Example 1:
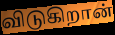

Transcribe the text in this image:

விடுகிறான்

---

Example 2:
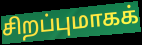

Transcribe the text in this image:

சிறப்புமாகக்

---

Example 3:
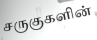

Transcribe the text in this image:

சருகுகளின்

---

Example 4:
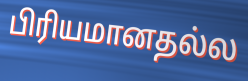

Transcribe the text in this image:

பிரியமானதல்ல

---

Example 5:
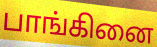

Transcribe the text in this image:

பாங்கினை